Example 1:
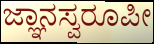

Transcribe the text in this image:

ಜ್ಞಾನಸ್ವರೂಪೀ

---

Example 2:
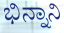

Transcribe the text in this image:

ಭಿನ್ನಾನಿ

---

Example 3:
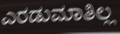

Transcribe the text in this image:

ಎರಡುಮಾತಿಲ್ಲ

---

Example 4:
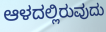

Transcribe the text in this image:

ಆಳದಲ್ಲಿರುವುದು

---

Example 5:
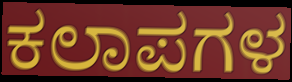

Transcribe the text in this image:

ಕಲಾಪಗಳ